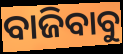
ବାଜିବାବୁ